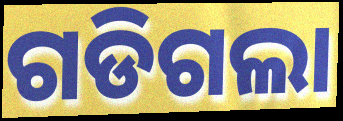
ଗଡିଗଲା